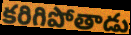
కరిగిపోతాడు